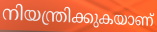
നിയന്ത്രിക്കുകയാണ്